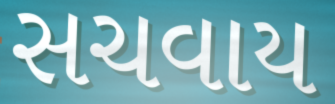
સચવાય